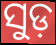
ସୁଡ଼